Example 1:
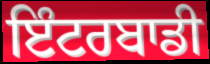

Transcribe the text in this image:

ਇੰਟਰਬਾਡੀ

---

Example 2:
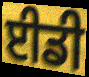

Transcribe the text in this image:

ਈਡੀ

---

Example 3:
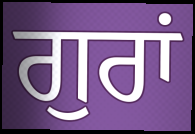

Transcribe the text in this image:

ਗੁਰਾਂ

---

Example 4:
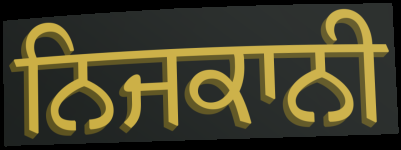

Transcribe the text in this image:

ਨਿਜਕਾਨੀ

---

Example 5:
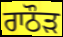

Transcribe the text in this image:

ਰਾਠੌੜ